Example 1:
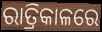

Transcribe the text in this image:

ରାତ୍ରିକାଳରେ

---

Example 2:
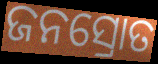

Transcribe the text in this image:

ଜନସ୍ରୋତ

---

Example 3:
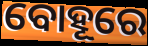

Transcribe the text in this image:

ବୋହୂରେ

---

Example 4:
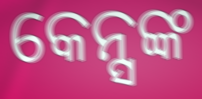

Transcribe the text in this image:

କେନ୍ସଙ୍କ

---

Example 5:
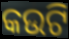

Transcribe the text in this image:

କଉଟି